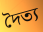
দৈত্য